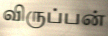
விருப்பன்